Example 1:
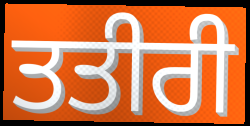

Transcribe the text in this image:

ਤਤੀਰੀ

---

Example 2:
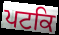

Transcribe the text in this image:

ਪਟਕਿ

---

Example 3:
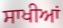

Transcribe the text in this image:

ਸਾਖੀਆਂ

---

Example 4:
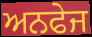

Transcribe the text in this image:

ਅਨਫੇਜ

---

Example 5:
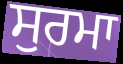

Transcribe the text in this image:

ਸੁਰਮਾ